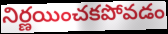
నిర్ణయించకపోవడం